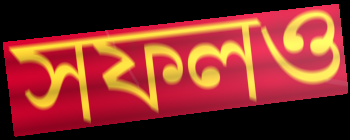
সফলও